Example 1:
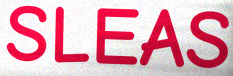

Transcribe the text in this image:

SLEAS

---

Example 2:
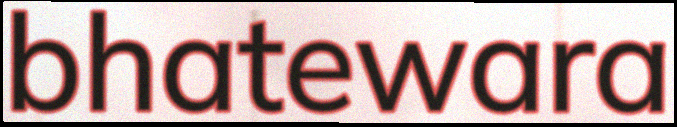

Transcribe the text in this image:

bhatewara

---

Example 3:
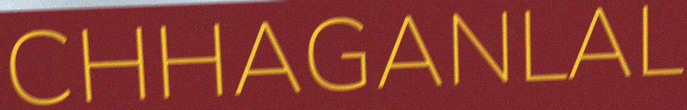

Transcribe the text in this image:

CHHAGANLAL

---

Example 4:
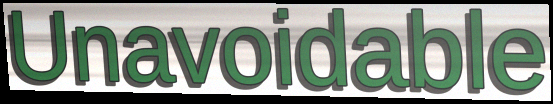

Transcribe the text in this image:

Unavoidable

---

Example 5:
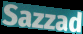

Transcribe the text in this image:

Sazzad